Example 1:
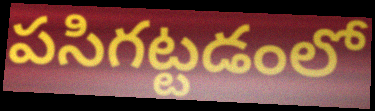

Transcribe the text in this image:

పసిగట్టడంలో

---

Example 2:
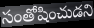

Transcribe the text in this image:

సంతోషించుడని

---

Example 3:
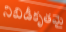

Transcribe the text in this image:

నిబిడీకృతమై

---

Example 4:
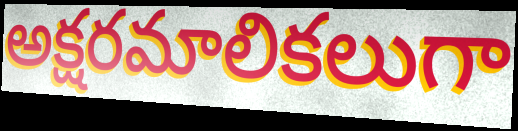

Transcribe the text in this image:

అక్షరమాలికలుగా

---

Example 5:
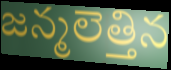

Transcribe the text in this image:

జన్మలెత్తిన